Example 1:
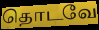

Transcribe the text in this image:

தொடவே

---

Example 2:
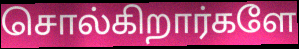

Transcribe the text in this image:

சொல்கிறார்களே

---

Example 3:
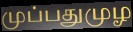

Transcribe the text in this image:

முப்பதுமுழ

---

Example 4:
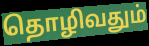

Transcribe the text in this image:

தொழிவதும்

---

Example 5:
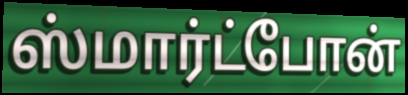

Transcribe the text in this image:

ஸ்மார்ட்போன்